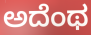
ಅದೆಂಥ